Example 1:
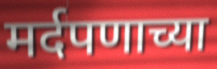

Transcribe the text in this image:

मर्दपणाच्या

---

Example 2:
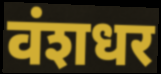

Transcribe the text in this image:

वंशधर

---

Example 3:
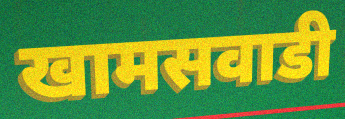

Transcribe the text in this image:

खामसवाडी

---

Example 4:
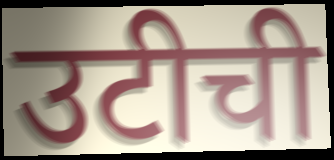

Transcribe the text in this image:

उटीची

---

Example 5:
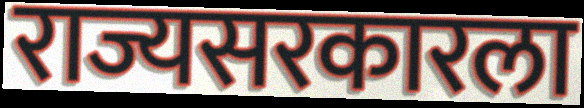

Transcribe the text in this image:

राज्यसरकारला